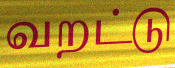
வறட்டு